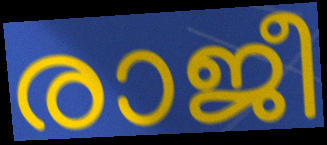
രാജീ